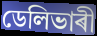
ডেলিভাৰী